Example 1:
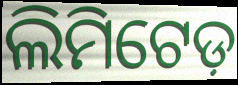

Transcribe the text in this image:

ଲିମିଟେଡ଼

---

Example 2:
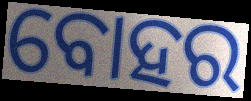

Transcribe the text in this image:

ବୋହର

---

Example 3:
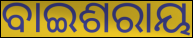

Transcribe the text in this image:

ବାଇଶରାୟ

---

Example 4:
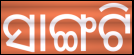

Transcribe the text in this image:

ସାଙ୍ଗଟି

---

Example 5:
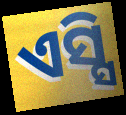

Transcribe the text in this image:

ଏସ୍ସି